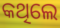
କଥିଲେ